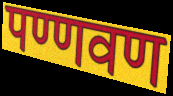
पण्णवण